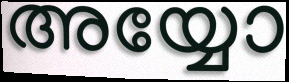
അയ്യോ